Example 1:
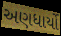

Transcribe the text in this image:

અણધાર્યો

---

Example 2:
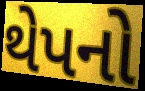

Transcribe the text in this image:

થેપનો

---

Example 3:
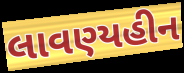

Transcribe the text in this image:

લાવણ્યહીન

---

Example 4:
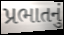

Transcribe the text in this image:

પ્રભાતનું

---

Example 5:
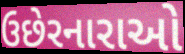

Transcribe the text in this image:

ઉછેરનારાઓ